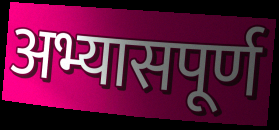
अभ्यासपूर्ण